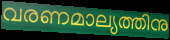
വരണമാല്യത്തിനു